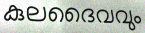
കുലദൈവവും